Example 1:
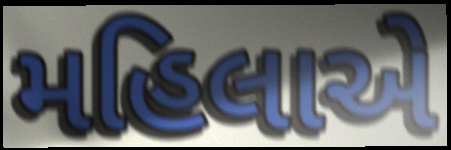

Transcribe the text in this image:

મહિલાએ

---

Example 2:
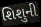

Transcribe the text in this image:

શિશુની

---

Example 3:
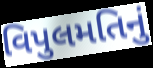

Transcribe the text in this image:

વિપુલમતિનું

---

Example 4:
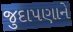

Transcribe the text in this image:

જુદાપણાને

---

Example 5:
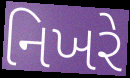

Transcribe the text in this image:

નિખરે